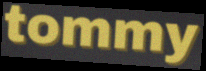
tommy